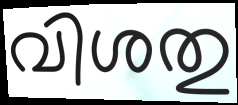
വിശതു